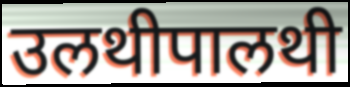
उलथीपालथी